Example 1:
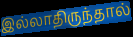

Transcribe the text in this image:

இல்லாதிருந்தால்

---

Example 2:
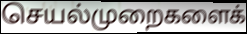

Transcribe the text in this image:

செயல்முறைகளைக்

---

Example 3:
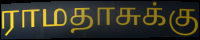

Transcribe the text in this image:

ராமதாசுக்கு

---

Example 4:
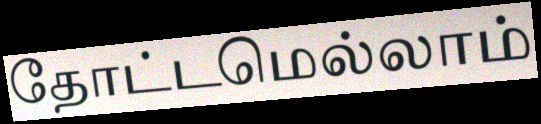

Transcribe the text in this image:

தோட்டமெல்லாம்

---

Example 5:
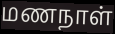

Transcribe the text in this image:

மணநாள்